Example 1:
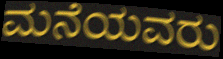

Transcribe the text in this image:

ಮನೆಯವರು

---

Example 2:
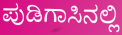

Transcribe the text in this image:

ಪುಡಿಗಾಸಿನಲ್ಲಿ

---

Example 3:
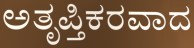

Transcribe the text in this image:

ಅತೃಪ್ತಿಕರವಾದ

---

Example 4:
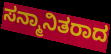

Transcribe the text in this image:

ಸನ್ಮಾನಿತರಾದ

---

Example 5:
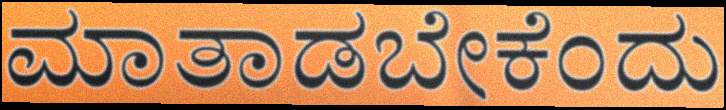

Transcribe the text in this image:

ಮಾತಾಡಬೇಕೆಂದು